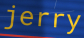
jerry